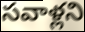
సవాళ్లని